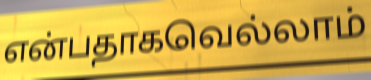
என்பதாகவெல்லாம்